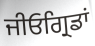
ਜੀਓਗ੍ਰਿਡਾਂ